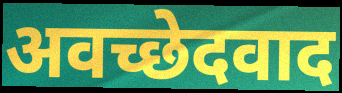
अवच्छेदवाद